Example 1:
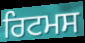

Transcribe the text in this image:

ਰਿਟਮਸ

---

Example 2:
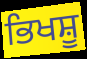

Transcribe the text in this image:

ਭਿਖਸ਼ੂ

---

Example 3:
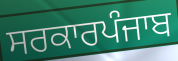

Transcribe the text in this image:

ਸਰਕਾਰਪੰਜਾਬ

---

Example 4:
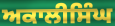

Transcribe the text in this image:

ਅਕਾਲੀਸਿੰਘ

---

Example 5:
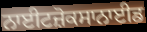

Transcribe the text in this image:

ਨਾਈਟਜ਼ੋਕਸਾਨਾਈਡ